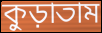
কুড়াতাম